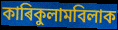
কাৰিকুলামবিলাক